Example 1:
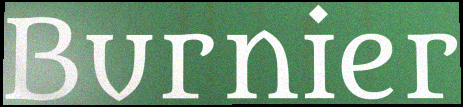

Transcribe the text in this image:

Burnier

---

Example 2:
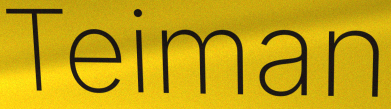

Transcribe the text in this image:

Teiman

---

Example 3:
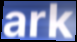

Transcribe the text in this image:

ark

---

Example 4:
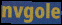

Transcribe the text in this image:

nvgole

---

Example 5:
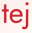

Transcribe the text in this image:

tej